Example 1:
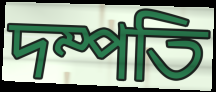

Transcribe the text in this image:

দম্পতি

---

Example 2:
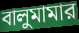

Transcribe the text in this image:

বালুমামার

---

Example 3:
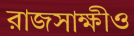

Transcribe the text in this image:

রাজসাক্ষীও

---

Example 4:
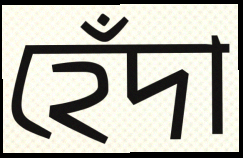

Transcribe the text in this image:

হেঁদা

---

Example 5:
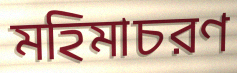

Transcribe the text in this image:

মহিমাচরণ